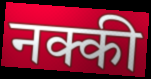
नक्की